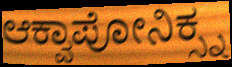
ಆಕ್ವಾಪೋನಿಕ್ಸ್ನ